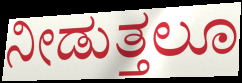
ನೀಡುತ್ತಲೂ